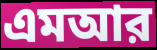
এমআর